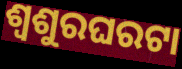
ଶ୍ୱଶୁରଘରଟା